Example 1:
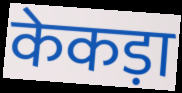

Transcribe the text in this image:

केकड़ा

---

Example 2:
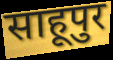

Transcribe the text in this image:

साहूपुर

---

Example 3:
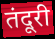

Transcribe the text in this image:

तंदूरी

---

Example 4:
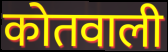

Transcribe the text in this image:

कोतवाली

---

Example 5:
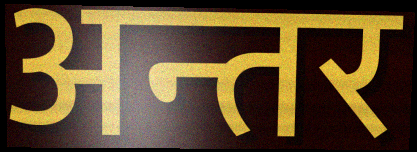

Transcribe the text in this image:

अन्तर